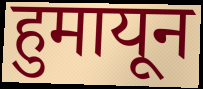
हुमायून